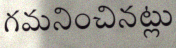
గమనించినట్లు